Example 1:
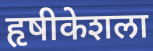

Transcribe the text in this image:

हृषीकेशला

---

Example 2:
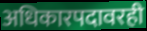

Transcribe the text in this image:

अधिकारपदावरही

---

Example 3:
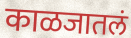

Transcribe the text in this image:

काळजातलं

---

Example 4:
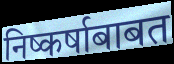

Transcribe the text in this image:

निष्कर्षाबाबत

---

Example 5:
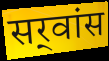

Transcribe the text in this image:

सर्वांस